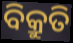
ବିକ୍ରୁତି